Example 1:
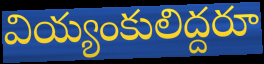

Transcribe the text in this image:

వియ్యంకులిద్దరూ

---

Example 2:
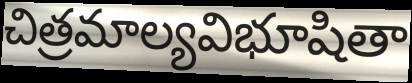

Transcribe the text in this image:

చిత్రమాల్యవిభూషితా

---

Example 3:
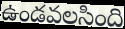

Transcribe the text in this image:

ఉండవలసింది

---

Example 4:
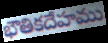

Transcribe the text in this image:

భౌతికదేహము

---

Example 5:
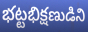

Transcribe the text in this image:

భట్టభిక్షణుడిని